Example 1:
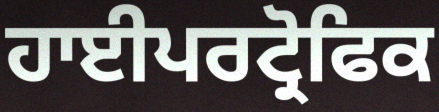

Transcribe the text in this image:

ਹਾਈਪਰਟ੍ਰੋਫਿਕ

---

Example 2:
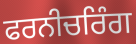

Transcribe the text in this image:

ਫਰਨੀਚਰਿੰਗ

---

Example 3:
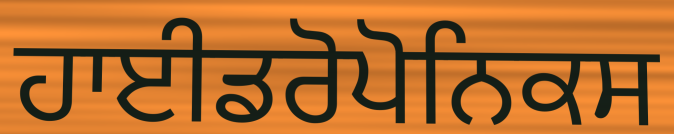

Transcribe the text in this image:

ਹਾਈਡਰੋਪੋਨਿਕਸ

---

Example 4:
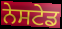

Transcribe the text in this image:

ਨੇਸਟੇਡ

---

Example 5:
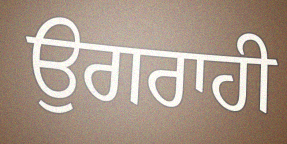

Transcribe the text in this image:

ਉਗਰਾਹੀ